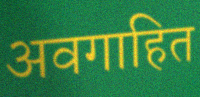
अवगाहित